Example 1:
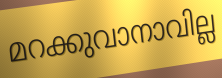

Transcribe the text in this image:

മറക്കുവാനാവില്ല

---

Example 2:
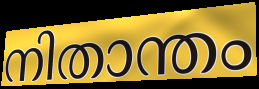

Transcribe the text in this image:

നിതാന്തം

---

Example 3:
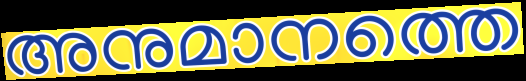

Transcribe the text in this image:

അനുമാനത്തെ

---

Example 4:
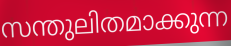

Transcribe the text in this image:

സന്തുലിതമാക്കുന്ന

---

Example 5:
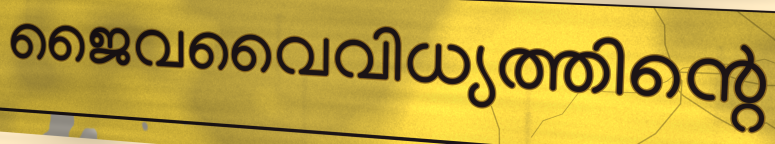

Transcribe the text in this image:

ജൈവവൈവിധ്യത്തിന്റെ